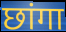
छांगा